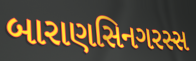
બારાણસિનગરસ્સ